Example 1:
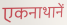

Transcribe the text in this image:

एकनाथानें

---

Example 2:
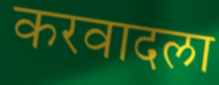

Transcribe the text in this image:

करवादला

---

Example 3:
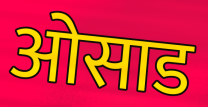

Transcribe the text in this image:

ओसाड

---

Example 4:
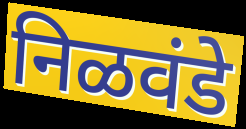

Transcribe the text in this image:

निळवंडे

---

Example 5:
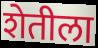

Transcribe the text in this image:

शेतीला